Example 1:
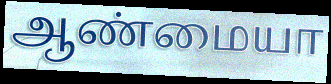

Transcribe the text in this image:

ஆண்மையா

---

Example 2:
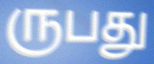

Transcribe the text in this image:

ருபது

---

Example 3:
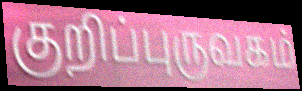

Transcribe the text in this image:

குறிப்புருவகம்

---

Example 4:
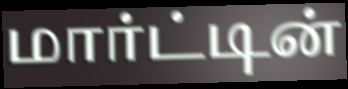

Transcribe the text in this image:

மார்ட்டின்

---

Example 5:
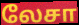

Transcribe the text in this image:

லேசா